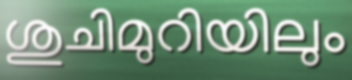
ശുചിമുറിയിലും